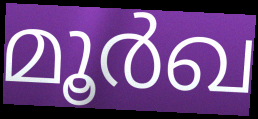
മൂർഖ